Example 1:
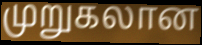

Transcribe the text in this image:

முறுகலான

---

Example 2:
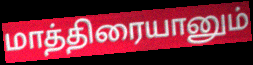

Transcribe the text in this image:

மாத்திரையானும்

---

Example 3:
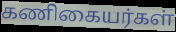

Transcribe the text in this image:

கணிகையர்கள்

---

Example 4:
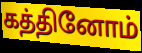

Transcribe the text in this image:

கத்தினோம்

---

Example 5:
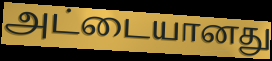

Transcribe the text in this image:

அட்டையானது